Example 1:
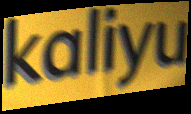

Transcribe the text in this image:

kaliyu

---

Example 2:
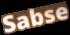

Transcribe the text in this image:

Sabse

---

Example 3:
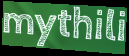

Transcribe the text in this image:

mythili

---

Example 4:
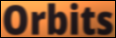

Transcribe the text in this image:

Orbits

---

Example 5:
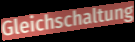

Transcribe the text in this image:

Gleichschaltung